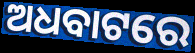
ଅଧବାଟରେ